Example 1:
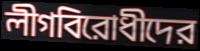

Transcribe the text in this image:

লীগবিরোধীদের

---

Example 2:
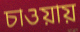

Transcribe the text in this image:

চাওয়ায়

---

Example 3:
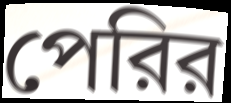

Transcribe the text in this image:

পেরির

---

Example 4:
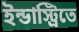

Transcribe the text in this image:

ইন্ডাস্ট্রিতে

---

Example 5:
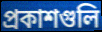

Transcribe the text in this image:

প্রকাশগুলি